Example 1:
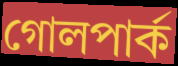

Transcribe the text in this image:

গোলপার্ক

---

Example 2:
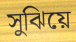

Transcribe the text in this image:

সুঝিয়ে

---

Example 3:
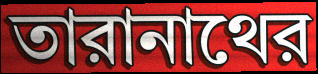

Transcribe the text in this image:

তারানাথের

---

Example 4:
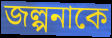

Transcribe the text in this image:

জল্পনাকে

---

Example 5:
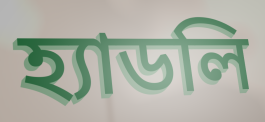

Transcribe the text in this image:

হ্যাডলি